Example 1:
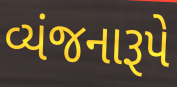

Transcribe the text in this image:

વ્યંજનારૂપે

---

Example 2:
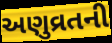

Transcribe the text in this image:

અણુવ્રતની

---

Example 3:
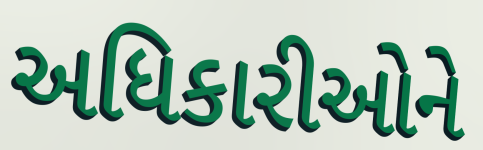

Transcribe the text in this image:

અધિકારીઓને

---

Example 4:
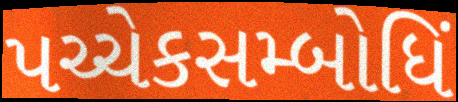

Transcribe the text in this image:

પચ્ચેકસમ્બોધિં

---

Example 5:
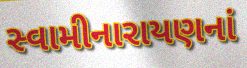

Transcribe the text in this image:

સ્વામીનારાયણનાં